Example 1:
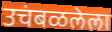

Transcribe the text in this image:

उचंबळलेला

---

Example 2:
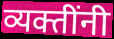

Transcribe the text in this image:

व्यक्‍तींनी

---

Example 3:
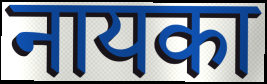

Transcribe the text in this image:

नायका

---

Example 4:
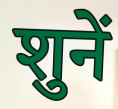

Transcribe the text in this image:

शुनें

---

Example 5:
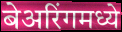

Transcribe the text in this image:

बेअरिंगमध्ये